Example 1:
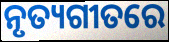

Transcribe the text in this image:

ନୃତ୍ୟଗୀତରେ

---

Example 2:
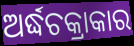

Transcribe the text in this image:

ଅର୍ଦ୍ଧଚକ୍ରାକାର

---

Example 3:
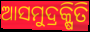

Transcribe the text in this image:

ଆସମୁଦ୍ରକ୍ଷିତି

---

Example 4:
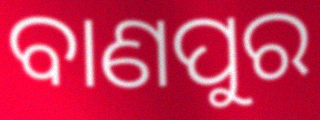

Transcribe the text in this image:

ବାଣପୁର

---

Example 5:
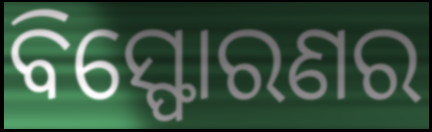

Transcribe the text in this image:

ବିସ୍ଫୋରଣର